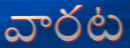
వారట